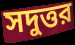
সদুত্তর